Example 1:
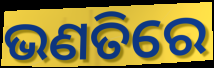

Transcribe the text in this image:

ଭଣତିରେ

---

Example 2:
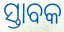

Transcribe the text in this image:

ସ୍ତାବକ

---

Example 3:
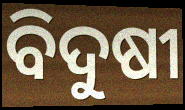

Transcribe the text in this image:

ବିଦୁଷୀ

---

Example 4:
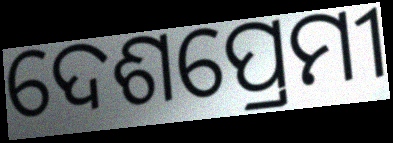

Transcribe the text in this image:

ଦେଶପ୍ରେମୀ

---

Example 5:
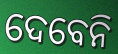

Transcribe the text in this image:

ଦେବେନି